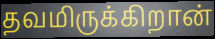
தவமிருக்கிறான்